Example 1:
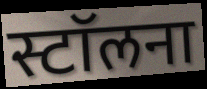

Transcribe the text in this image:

स्टॉलना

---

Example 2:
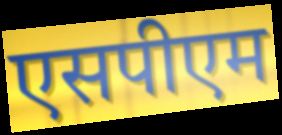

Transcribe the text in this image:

एसपीएम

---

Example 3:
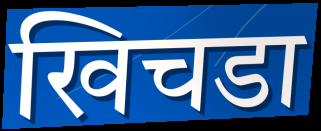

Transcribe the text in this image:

खिचडा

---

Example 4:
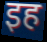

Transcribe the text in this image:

इह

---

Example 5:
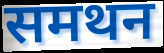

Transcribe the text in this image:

समथन